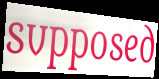
supposed